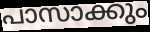
പാസാക്കും